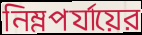
নিম্নপর্যায়ের